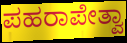
ಪಹರಾಪೇತ್ವಾ